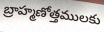
బ్రాహ్మణోత్తములకు